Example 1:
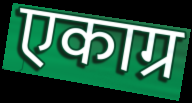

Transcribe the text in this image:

एकाग्र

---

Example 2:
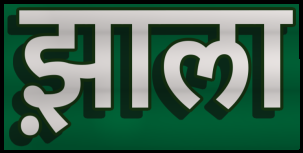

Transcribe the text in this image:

झ़ाला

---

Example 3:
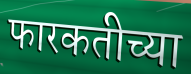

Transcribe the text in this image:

फारकतीच्या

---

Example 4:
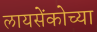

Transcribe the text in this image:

लायसेंकोच्या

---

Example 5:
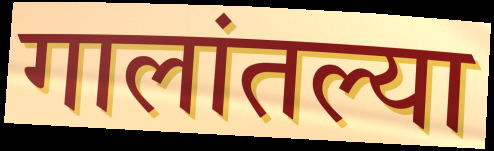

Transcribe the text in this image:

गालांतल्या